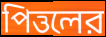
পিত্তলের